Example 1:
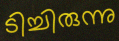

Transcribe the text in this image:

ടിച്ചിരുന്നു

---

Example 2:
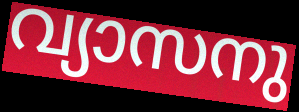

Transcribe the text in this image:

വ്യാസനു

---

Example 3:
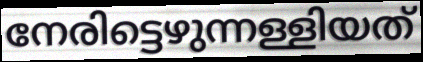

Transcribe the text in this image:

നേരിട്ടെഴുന്നള്ളിയത്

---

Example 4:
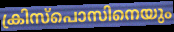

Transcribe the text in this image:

ക്രിസ്പൊസിനെയും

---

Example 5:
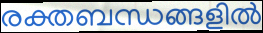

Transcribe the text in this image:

രക്തബന്ധങ്ങളിൽ